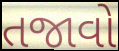
તજાવો